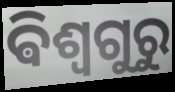
ଵିଶ୍ଵଗୁରୁ